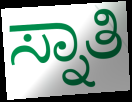
ಸ್ನಾತಿ